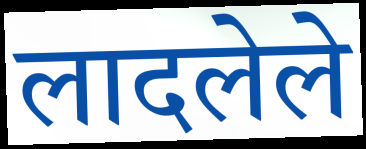
लादलेले